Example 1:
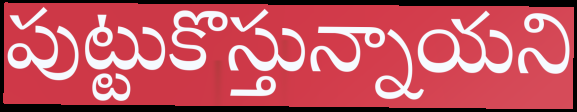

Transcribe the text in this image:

పుట్టుకొస్తున్నాయని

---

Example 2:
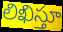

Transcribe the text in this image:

లిఖిస్తూ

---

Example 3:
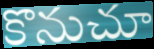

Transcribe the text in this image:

కొనుచూ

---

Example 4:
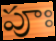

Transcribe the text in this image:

పూః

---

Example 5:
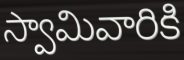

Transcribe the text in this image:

స్వామివారికి